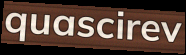
quascirev